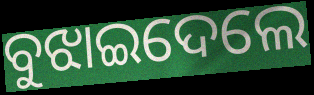
ବୁଝାଇଦେଲେ